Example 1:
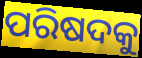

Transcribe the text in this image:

ପରିଷଦକୁ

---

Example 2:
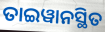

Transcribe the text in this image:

ତାଇୱାନସ୍ଥିତ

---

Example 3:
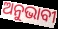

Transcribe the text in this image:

ଅନୁଭାବୀ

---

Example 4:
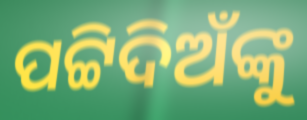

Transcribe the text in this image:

ପଟ୍ଟିଦିଅଁଙ୍କୁ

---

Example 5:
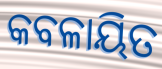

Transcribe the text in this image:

କବଳାୟିତ